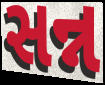
સન્ન